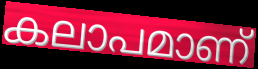
കലാപമാണ്